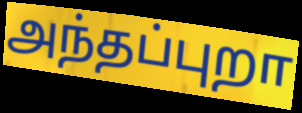
அந்தப்புறா